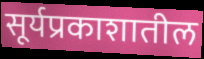
सूर्यप्रकाशातील